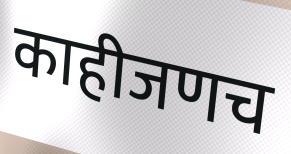
काहीजणच